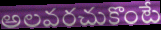
అలవరచుకొంటే